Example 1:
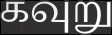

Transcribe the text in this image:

கவுறு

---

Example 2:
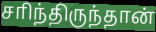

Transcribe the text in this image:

சரிந்திருந்தான்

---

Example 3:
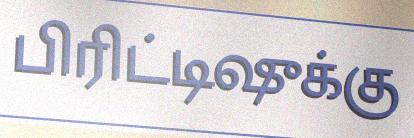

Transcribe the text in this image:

பிரிட்டிஷுக்கு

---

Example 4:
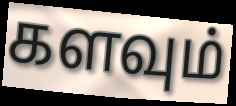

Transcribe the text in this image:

களவும்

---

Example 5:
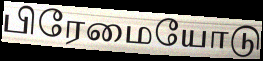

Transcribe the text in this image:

பிரேமையோடு